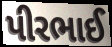
પીરભાઈ